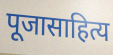
पूजासाहित्य